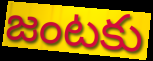
జంటకు